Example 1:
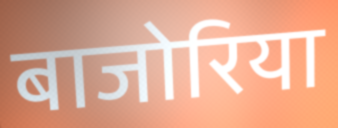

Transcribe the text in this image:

बाजोरिया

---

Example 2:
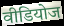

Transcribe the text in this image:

वीडियोज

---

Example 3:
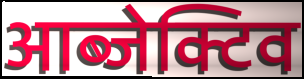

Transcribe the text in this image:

आब्जेक्टिव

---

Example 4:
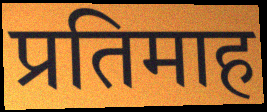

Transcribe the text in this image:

प्रतिमाह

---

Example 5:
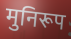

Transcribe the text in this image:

मुनिरूप